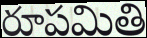
రూపమితి